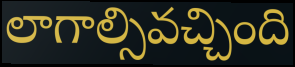
లాగాల్సివచ్చింది